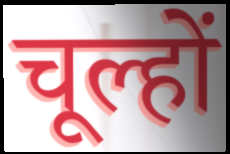
चूल्हों